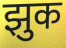
झुक